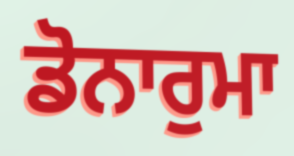
ਡੋਨਾਰੁਮਾ